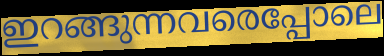
ഇറങ്ങുന്നവരെപ്പോലെ